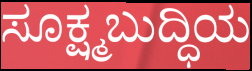
ಸೂಕ್ಷ್ಮಬುದ್ಧಿಯ